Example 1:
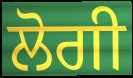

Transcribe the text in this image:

ਲੋਗੀ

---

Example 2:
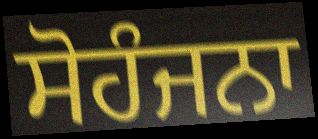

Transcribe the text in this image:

ਸੋਹੰਜਨਾ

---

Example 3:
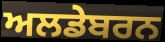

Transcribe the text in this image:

ਅਲਡੇਬਰਨ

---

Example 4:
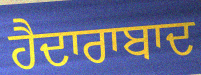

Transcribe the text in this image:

ਹੈਦਾਰਾਬਾਦ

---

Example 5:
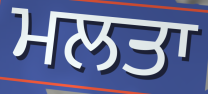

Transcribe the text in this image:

ਮਲਤਾ